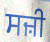
ਸਜ਼ੀ